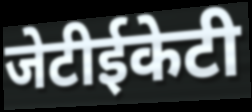
जेटीईकेटी